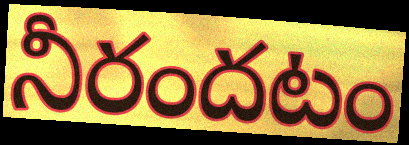
నీరందటం